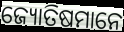
ଜ୍ୟୋତିଷମାନେ